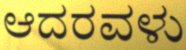
ಆದರವಳು